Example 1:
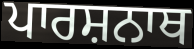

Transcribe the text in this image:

ਪਾਰਸ਼ਨਾਥ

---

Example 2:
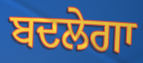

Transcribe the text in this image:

ਬਦਲੇਗਾ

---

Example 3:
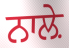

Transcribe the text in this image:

ਨਾਲ਼ੇ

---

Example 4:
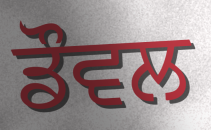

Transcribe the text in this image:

ਡੌਵਲ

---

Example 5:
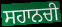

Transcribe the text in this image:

ਸਹਾਨਚੀ